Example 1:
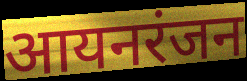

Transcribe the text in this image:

आयनरंजन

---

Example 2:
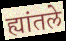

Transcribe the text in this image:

ह्यांतले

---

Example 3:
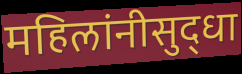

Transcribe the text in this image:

महिलांनीसुद्धा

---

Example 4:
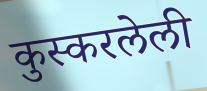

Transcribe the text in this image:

कुस्करलेली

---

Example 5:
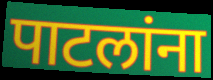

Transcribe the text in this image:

पाटलांना